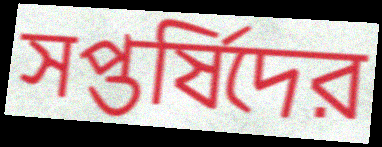
সপ্তর্ষিদের